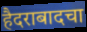
हैदराबादचा